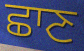
ਛਾਣ